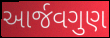
આર્જવગુણ